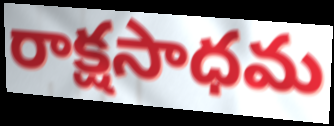
రాక్షసాధమ